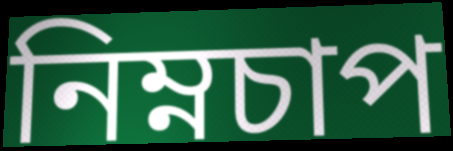
নিম্নচাপ